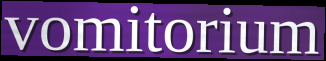
vomitorium